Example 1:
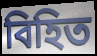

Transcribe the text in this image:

বিহিত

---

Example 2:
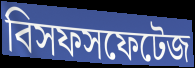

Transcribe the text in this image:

বিসফসফেটেজ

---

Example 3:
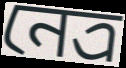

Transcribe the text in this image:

নেত্র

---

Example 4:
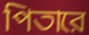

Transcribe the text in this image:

পিতারে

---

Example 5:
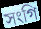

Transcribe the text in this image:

সংগি